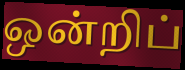
ஒன்றிப்